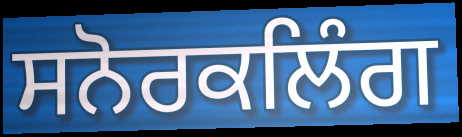
ਸਨੋਰਕਲਿੰਗ